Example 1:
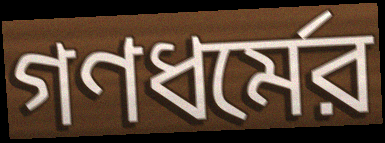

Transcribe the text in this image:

গণধর্মের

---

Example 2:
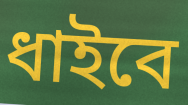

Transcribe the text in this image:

ধাইবে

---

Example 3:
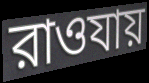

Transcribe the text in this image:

রাওযায়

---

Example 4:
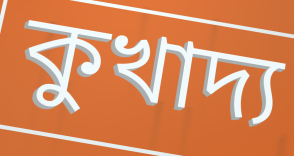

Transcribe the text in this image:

কুখাদ্য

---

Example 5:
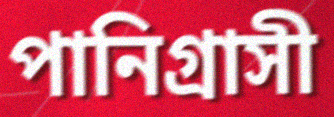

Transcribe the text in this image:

পানিগ্রাসী